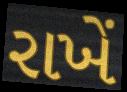
રાખેં